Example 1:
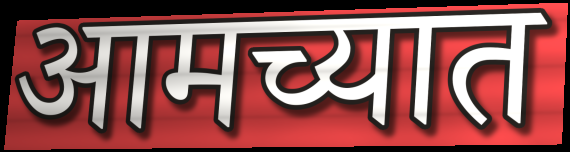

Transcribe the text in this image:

आमच्यात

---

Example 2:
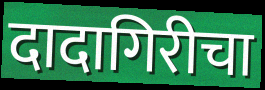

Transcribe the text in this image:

दादागिरीचा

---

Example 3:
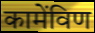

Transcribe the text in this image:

कामेंविण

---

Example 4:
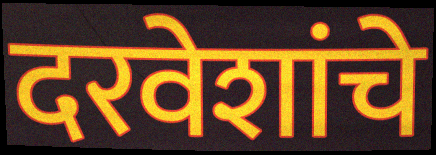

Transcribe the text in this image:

दरवेशांचे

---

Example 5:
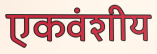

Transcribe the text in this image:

एकवंशीय